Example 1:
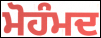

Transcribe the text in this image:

ਮੋਹੰਮਦ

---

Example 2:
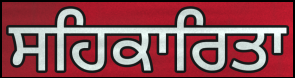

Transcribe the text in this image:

ਸਹਿਕਾਰਿਤਾ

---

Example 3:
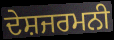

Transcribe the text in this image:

ਦੇਸ਼ਜਰਮਨੀ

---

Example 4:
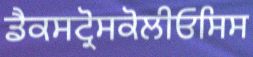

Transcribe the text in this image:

ਡੈਕਸਟ੍ਰੋਸਕੋਲੀਓਸਿਸ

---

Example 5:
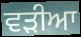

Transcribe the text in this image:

ਵੜੀਆ